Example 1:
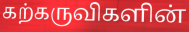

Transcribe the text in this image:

கற்கருவிகளின்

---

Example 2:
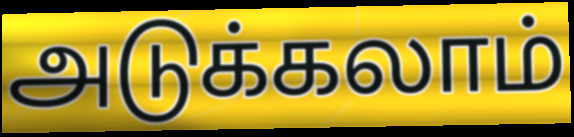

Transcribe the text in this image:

அடுக்கலாம்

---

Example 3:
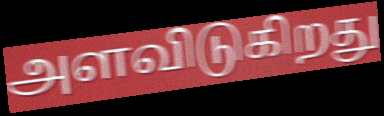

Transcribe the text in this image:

அளவிடுகிறது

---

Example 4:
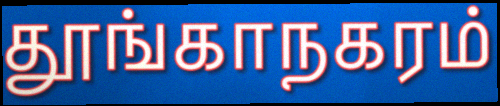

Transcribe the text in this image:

தூங்காநகரம்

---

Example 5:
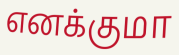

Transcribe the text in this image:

எனக்குமா